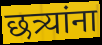
छत्र्यांना